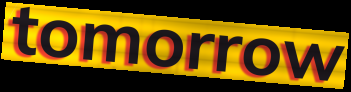
tomorrow